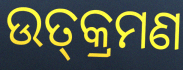
ଉତ୍‍କ୍ରମଣ